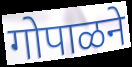
गोपाळने